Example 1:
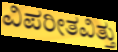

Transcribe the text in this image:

ವಿಪರೀತವಿತ್ತು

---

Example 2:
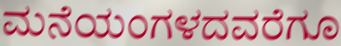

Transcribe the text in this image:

ಮನೆಯಂಗಳದವರೆಗೂ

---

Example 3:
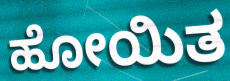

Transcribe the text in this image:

ಹೋಯಿತ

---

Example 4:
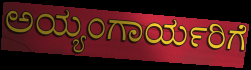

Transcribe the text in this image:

ಅಯ್ಯಂಗಾರ್ಯರಿಗೆ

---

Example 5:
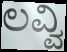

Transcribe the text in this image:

ಲವ್ವಿ